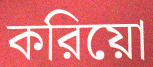
করিয়ো